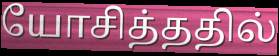
யோசித்ததில்